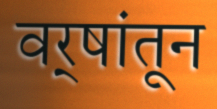
वर्षांतून